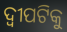
ଦ୍ୱୀପଟିକୁ